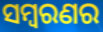
ସମ୍ବରଣର